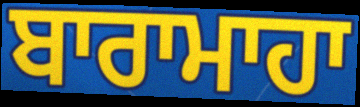
ਬਾਰਾਮਾਹਾ